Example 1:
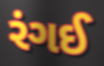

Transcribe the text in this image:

રંગઈ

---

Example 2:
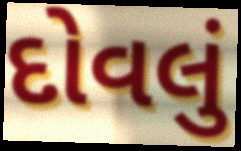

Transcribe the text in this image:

દોવલું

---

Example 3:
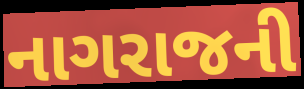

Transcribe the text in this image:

નાગરાજની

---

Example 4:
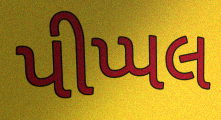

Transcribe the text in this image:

પીપ્પલ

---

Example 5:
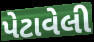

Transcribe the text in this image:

પેટાવેલી